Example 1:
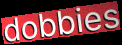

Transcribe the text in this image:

dobbies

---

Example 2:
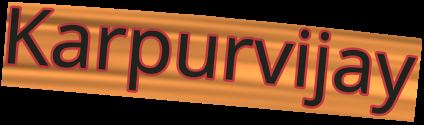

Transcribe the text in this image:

Karpurvijay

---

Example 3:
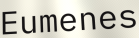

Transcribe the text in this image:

Eumenes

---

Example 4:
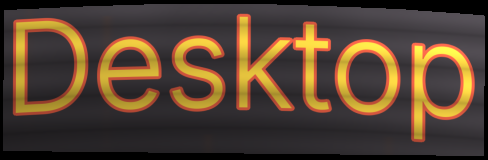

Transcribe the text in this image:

Desktop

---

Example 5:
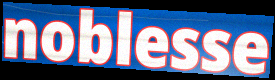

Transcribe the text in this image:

noblesse